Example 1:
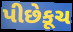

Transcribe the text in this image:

પીછેકૂચ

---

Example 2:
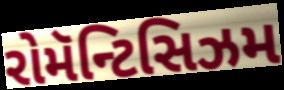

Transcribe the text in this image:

રોમૅન્ટિસિઝમ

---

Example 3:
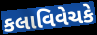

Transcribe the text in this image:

કલાવિવેચકે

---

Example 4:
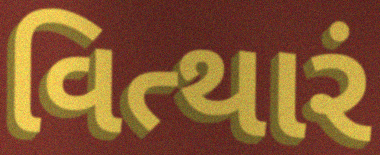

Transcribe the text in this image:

વિત્થારં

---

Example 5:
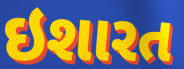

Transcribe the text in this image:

ઇશારત